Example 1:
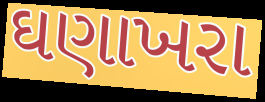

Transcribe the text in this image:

ઘણાખરા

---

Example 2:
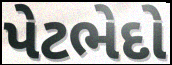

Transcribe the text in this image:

પેટભેદો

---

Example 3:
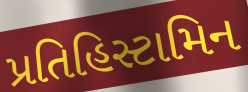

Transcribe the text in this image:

પ્રતિહિસ્ટામિન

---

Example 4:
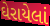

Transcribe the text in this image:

ઘેરાયેલાં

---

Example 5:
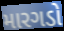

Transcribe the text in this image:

મારગડો